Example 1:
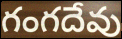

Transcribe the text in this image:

గంగదేవు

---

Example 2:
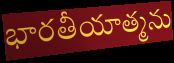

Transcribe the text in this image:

భారతీయాత్మను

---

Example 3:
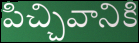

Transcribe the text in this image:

పిచ్చివానికి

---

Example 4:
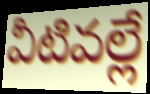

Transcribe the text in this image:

వీటివల్లే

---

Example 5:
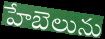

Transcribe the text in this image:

హేబెలును